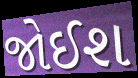
જોઈશ